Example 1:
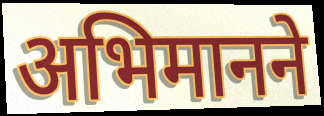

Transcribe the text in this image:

अभिमानने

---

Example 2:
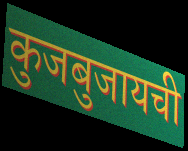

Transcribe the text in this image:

कुजबुजायची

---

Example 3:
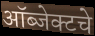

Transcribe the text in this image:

ऑब्जेक्टचे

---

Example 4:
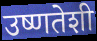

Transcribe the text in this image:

उष्णतेशी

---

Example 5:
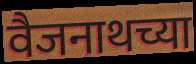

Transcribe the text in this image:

वैजनाथच्या